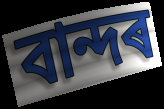
বান্দৰ